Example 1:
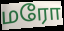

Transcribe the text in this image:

மரோ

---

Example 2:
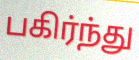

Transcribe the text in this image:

பகிர்ந்து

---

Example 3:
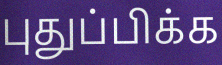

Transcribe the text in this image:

புதுப்பிக்க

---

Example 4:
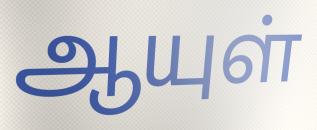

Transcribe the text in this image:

ஆயுள்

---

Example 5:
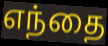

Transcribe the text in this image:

எந்தை